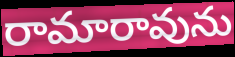
రామారావును